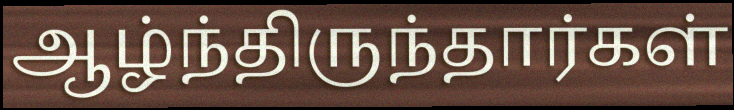
ஆழ்ந்திருந்தார்கள்